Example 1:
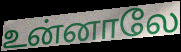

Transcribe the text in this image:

உன்னாலே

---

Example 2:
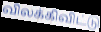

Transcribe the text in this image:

விலக்கிவிட்டு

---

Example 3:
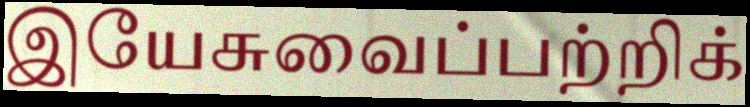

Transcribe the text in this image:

இயேசுவைப்பற்றிக்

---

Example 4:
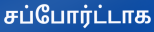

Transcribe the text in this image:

சப்போர்ட்டாக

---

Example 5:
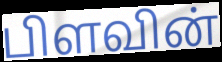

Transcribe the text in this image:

பிளவின்